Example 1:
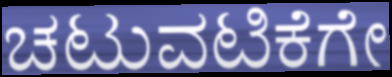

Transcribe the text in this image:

ಚಟುವಟಿಕೆಗೇ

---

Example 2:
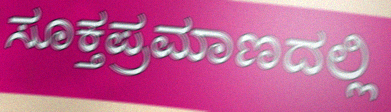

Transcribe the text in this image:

ಸೂಕ್ತಪ್ರಮಾಣದಲ್ಲಿ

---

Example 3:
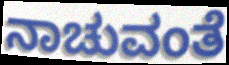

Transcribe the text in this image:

ನಾಚುವಂತೆ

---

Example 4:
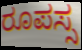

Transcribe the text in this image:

ರೂಪಸ್ಸ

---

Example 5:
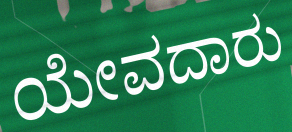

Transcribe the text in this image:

ಯೇವದಾರು